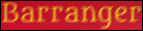
Barranger